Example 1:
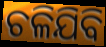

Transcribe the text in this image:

ଚଳିଯିବି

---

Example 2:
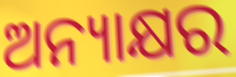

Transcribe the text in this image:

ଅନ୍ୟାକ୍ଷର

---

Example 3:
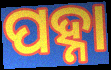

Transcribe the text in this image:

ପହ୍ନା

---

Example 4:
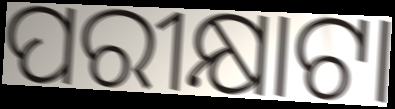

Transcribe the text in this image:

ପରୀକ୍ଷାଟା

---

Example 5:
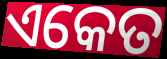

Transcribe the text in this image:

ଏକେତ